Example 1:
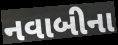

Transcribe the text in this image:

નવાબીના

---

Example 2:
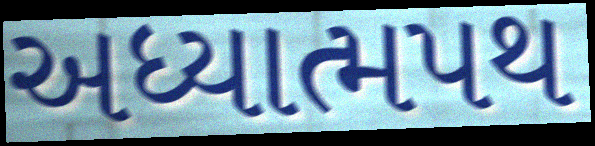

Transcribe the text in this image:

અધ્યાત્મપથ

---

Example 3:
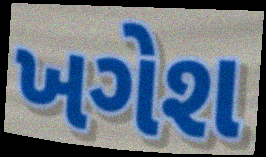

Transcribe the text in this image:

ખગેશ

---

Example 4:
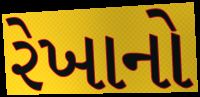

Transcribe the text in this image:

રેખાનો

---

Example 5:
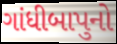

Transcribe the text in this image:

ગાંધીબાપુનો